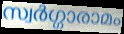
സ്വർഗ്ഗാരാമം